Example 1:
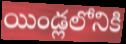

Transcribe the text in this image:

యిండ్లలోనికి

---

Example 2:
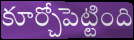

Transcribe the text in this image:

కూర్చోపెట్టింది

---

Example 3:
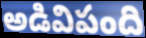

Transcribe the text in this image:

అడివిపంది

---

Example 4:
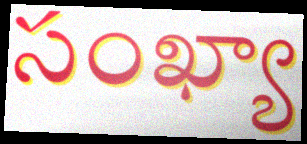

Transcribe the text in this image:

సంఖ్యా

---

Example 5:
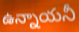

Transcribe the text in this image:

ఉన్నాయనీ